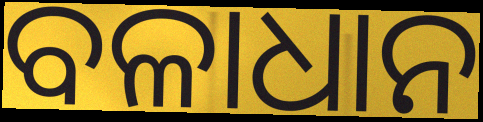
ବଳାଧାନ